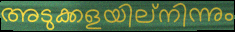
അടുക്കളയില്നിന്നും